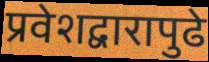
प्रवेशद्वारापुढे